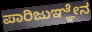
ಪಾರಿಜುಞ್ಞೇನ